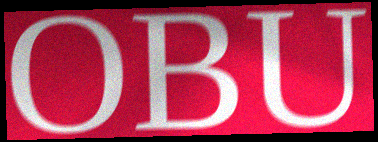
OBU